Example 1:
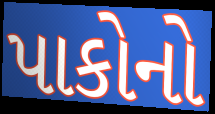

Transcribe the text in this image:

પાકોનો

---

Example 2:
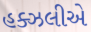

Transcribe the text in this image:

હક્ઝલીએ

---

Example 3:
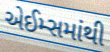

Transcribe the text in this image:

એઈમ્સમાંથી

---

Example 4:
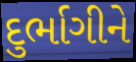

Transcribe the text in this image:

દુર્ભાગીને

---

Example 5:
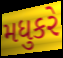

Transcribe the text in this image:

મધુકરે